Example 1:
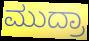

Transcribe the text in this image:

ಮುದ್ರಾ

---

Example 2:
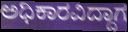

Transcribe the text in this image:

ಅಧಿಕಾರವಿದ್ದಾಗ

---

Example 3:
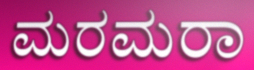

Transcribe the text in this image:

ಮರಮರಾ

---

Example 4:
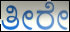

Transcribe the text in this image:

ತೀರೇ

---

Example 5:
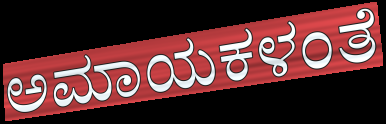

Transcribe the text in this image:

ಅಮಾಯಕಳಂತೆ